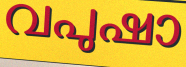
വപുഷാ